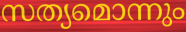
സത്യമൊന്നും